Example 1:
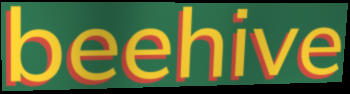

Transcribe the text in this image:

beehive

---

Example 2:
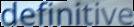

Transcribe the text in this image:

definitive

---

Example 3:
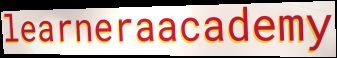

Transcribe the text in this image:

learneraacademy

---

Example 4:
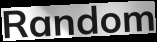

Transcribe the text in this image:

Random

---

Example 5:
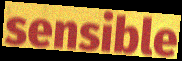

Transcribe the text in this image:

sensible